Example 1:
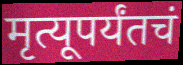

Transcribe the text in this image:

मृत्यूपर्यंतचं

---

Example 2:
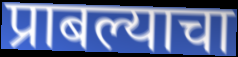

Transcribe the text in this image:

प्राबल्याचा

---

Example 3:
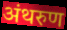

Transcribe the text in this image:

अंथरुण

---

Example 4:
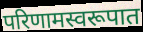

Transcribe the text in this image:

परिणामस्वरूपात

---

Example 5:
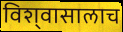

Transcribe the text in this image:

विश्वासालाच